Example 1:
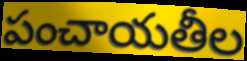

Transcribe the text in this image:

పంచాయతీల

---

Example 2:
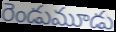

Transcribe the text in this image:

రెండుమూడు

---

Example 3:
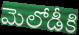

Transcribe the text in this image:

మెలోడీకి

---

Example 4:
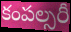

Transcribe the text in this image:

కంపల్సరీ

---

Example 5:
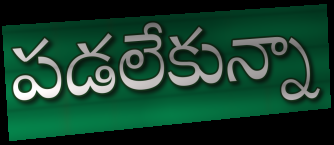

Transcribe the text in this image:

పడలేకున్నా